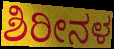
ಶಿರೀನಳ